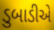
ડુબાડીએ